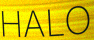
HALO